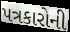
પત્રકારોની